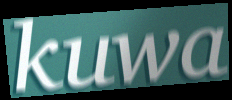
kuwa